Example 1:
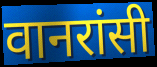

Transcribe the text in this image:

वानरांसी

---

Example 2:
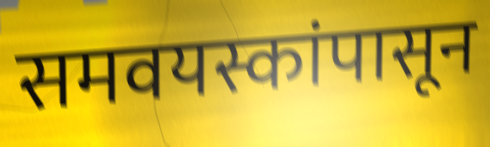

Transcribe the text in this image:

समवयस्कांपासून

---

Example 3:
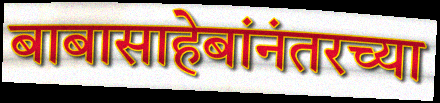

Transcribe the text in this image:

बाबासाहेबांनंतरच्या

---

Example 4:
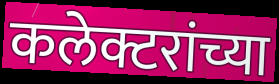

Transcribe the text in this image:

कलेक्टरांच्या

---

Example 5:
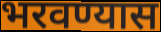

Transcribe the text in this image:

भरवण्यास